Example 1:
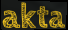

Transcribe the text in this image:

akta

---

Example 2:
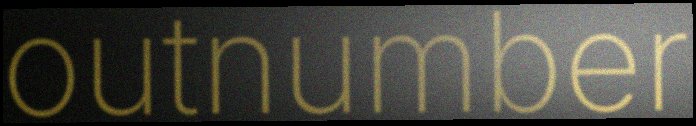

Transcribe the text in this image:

outnumber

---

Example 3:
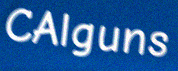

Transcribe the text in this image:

CAlguns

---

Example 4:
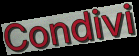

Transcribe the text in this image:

Condivi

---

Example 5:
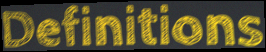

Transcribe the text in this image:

Definitions